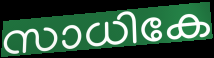
സാധികേ